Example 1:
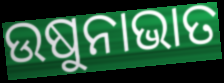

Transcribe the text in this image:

ଉଷୁନାଭାତ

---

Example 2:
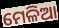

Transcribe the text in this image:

ମେଳିଆ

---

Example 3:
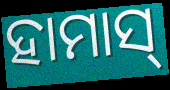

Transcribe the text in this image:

ହାମାସ୍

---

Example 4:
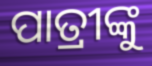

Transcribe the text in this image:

ପାତ୍ରୀଙ୍କୁ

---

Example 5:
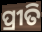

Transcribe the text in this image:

ପ୍ରୀତି